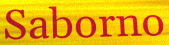
Saborno